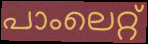
പാംലെറ്റ്